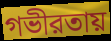
গভীরতায়